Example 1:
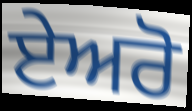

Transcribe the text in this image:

ਏਅਰੋ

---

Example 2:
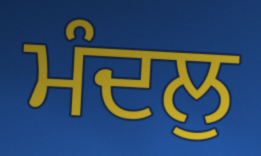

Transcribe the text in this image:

ਮੰਦਲੁ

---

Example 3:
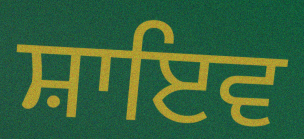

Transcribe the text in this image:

ਸ਼ਾਇਵ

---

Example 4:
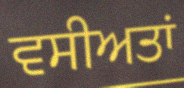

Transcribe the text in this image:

ਵਸੀਅਤਾਂ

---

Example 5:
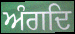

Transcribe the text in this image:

ਅੰਗਦਿ